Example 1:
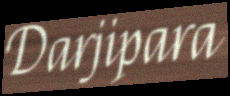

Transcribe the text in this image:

Darjipara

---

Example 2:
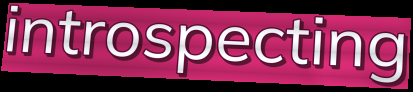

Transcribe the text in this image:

introspecting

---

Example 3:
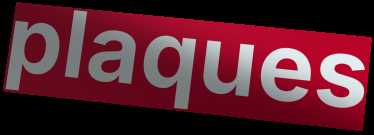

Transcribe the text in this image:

plaques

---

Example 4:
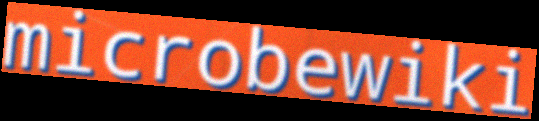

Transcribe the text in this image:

microbewiki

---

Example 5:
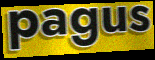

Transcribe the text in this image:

pagus